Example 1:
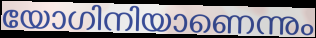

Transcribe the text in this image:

യോഗിനിയാണെന്നും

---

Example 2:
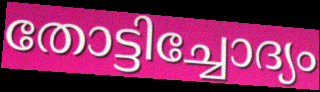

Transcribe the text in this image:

തോട്ടിച്ചോദ്യം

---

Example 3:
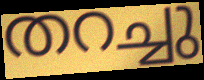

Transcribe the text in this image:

തറച്ചു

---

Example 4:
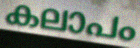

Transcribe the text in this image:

കലാപം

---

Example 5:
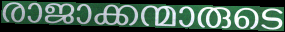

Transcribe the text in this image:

രാജാക്കന്മാരുടെ